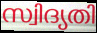
സ്വിദ്യതി